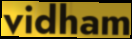
vidham